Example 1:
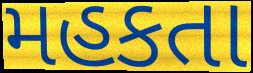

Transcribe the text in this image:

મહકતા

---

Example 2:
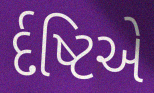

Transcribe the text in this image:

ર્દષ્ટિએ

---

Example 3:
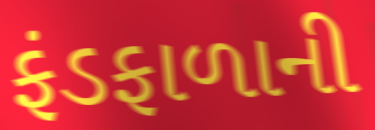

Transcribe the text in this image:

ફંડફાળાની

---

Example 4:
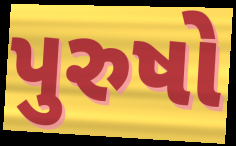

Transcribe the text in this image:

પુરુષો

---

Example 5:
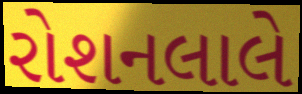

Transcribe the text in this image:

રોશનલાલે